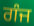
ਗੰਜ